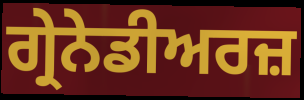
ਗ੍ਰੇਨੇਡੀਅਰਜ਼